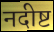
नदीष्ट